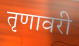
तृणावरी